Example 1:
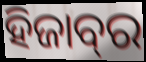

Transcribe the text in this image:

ହିଜାବ୍‌ର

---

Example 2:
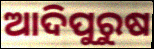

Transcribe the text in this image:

ଆଦିପୁରୁଷ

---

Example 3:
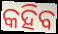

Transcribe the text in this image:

କହିବ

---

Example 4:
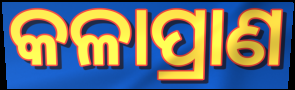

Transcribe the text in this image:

କଳାପ୍ରାଣ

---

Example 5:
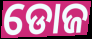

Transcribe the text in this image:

ଡୋଜ